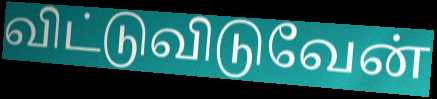
விட்டுவிடுவேன்